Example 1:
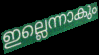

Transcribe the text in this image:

ഇല്ലെന്നാകും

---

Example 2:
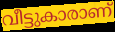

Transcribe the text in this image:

വീട്ടുകാരാണ്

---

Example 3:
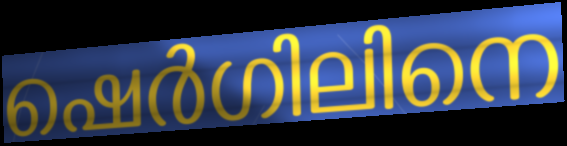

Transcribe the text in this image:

ഷെർഗിലിനെ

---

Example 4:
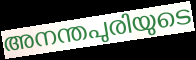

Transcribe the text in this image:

അനന്തപുരിയുടെ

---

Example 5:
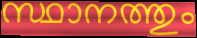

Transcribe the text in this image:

സ്ഥാനത്തും